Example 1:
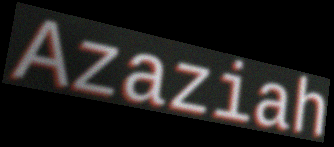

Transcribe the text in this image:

Azaziah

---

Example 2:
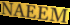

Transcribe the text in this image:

NAEEM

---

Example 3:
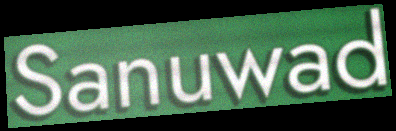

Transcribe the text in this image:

Sanuwad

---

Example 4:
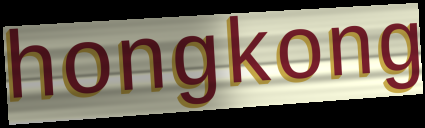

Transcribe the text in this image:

hongkong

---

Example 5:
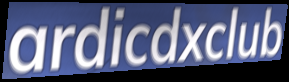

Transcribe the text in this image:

ardicdxclub